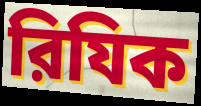
রিযিক